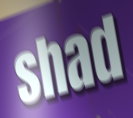
shad